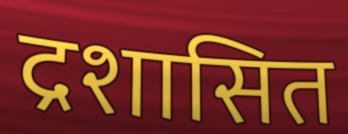
द्रशासित